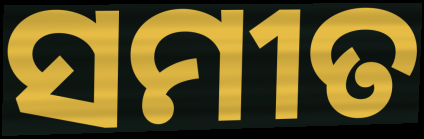
ସମୀତ